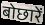
बोछारें